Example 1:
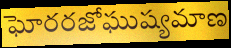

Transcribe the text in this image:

ఘోరరజోఘుష్యమాణ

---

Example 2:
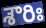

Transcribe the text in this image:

శౌరిః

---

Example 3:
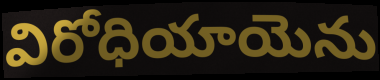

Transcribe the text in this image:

విరోధియాయెను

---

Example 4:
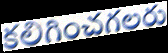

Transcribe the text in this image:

కలిగించగలరు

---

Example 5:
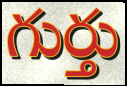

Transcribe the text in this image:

గుర్తు